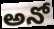
అనో